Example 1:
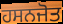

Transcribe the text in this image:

ਹਸਨਜੋਤ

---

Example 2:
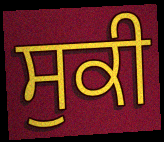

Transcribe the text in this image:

ਸੁਕੀ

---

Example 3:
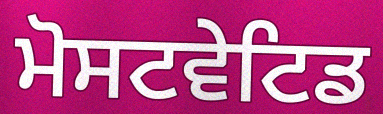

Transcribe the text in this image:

ਮੋਸਟਵੇਟਿਡ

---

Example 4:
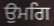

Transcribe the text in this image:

ਉਮਗਿ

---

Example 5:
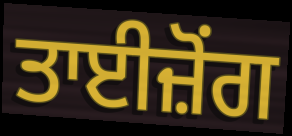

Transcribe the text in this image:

ਤਾਈਜ਼ੋਂਗ